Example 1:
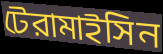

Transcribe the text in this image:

টেরামাইসিন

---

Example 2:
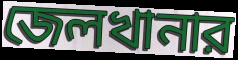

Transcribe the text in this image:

জেলখানার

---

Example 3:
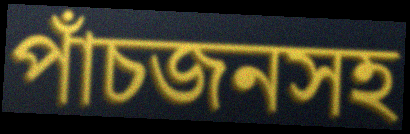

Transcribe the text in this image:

পাঁচজনসহ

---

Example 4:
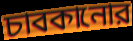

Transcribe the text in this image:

চাবকানোর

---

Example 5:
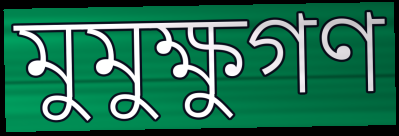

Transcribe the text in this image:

মুমুক্ষুগণ